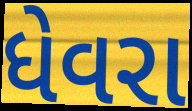
ધેવરા